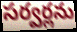
సర్వర్లను